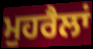
ਮੁਹਰੈਲਾਂ